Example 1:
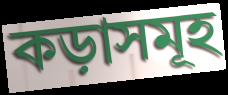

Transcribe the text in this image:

কড়াসমূহ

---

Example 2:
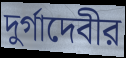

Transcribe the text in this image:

দুর্গাদেবীর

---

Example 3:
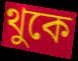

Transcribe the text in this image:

থুকে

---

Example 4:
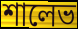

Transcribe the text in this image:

শালেভ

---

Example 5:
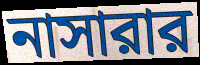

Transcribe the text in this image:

নাসারার